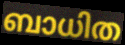
ബാധിത